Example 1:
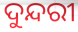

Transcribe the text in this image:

ଦୁନ୍ଦରୀ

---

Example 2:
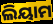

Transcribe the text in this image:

ଲିୟାମ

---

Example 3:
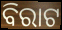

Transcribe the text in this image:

ବିରାଟ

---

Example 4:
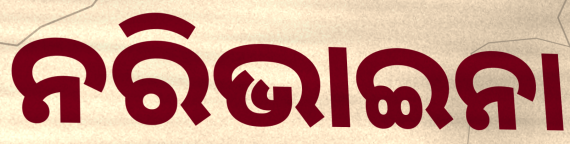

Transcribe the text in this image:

ନରିଭାଇନା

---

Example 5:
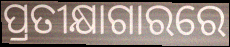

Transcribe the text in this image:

ପ୍ରତୀକ୍ଷାଗାରରେ